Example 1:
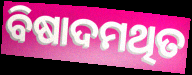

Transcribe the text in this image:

ବିଷାଦମଥିତ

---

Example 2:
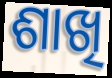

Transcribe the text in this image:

ଶାଖି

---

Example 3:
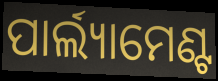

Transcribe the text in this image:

ପାର୍ଲ୍ୟାମେଣ୍ଟ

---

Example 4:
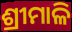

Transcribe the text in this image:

ଶ୍ରୀମାଳି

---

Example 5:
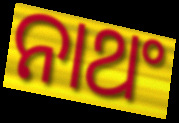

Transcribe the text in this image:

ନାଥଂ